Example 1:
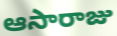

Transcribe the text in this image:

ఆసారాజు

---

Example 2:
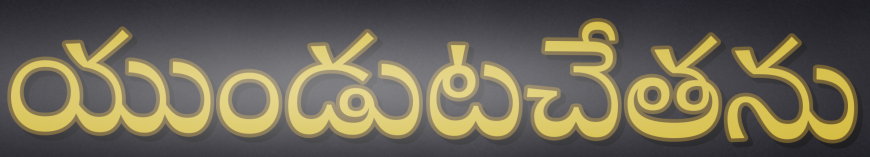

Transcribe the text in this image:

యుండుటచేతను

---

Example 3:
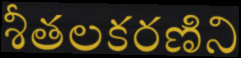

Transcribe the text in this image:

శీతలకరణిని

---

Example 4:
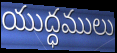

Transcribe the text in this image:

యుద్ధములు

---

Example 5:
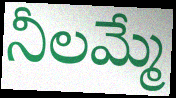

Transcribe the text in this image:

నీలమ్మే